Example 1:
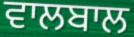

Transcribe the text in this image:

ਵਾਲਬਾਲ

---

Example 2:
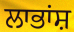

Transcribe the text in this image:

ਲਾਭਾਂਸ਼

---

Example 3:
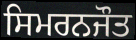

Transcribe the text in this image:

ਸਿਮਰਨਜੌਤ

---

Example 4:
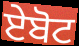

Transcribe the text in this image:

ਏਬੋਟ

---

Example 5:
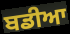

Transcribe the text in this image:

ਬਡੀਆ